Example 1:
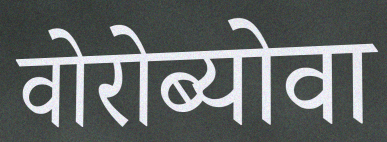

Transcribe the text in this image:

वोरोब्योवा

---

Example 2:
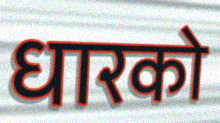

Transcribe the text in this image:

धारको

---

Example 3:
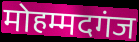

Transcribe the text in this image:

मोहम्मदगंज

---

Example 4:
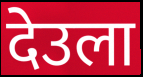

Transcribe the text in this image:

देउला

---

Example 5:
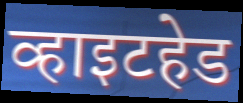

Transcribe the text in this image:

व्हाइटहेड